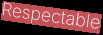
Respectable